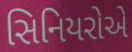
સિનિયરોએ